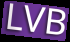
LVB